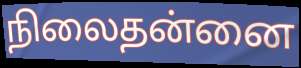
நிலைதன்னை